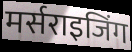
मर्सराइजिंग